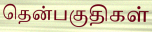
தென்பகுதிகள்